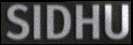
SIDHU